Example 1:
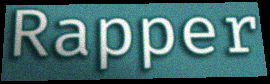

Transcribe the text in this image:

Rapper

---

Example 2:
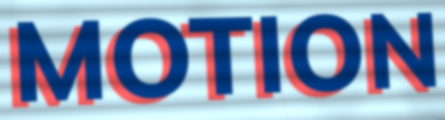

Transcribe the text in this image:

MOTION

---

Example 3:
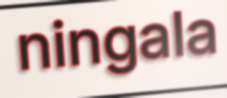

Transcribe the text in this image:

ningala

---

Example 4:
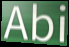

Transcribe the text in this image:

Abi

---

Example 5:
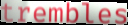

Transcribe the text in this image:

trembles